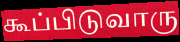
கூப்பிடுவாரு